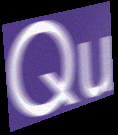
Qu